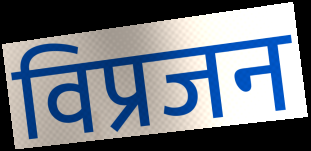
विप्रजन